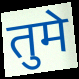
तुमे